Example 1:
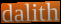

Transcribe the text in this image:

dalith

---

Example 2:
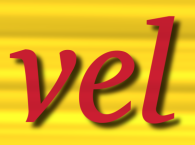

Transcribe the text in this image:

vel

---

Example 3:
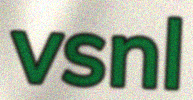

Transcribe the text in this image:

vsnl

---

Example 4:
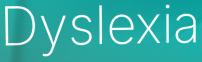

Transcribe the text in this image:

Dyslexia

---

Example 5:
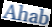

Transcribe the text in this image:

Ahab